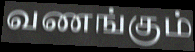
வணங்கும்